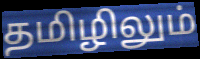
தமிழிலும்